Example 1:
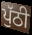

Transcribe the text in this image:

ਪੁੱਠੀ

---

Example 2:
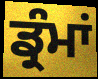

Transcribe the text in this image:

ਡ੍ਰੰਮਾਂ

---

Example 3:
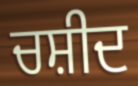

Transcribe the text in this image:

ਚਸ਼ੀਦ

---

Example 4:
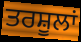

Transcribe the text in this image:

ਤਰਸ਼ੂਲਾਂ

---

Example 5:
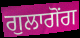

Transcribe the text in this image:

ਗੁਲਾਗੋਂਗ